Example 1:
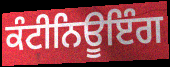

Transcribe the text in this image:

ਕੰਟੀਨਿਊਇੰਗ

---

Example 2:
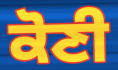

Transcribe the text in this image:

ਕੋਣੀ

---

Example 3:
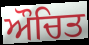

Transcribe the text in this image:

ਔਚਿਤ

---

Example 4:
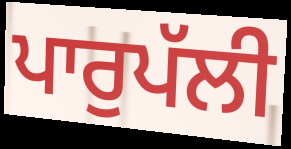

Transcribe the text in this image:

ਪਾਰੁਪੱਲੀ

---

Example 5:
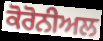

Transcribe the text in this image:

ਕੋਰੋਨੀਅਲ